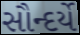
સૌન્દર્યે